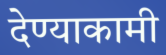
देण्याकामी